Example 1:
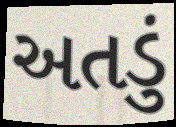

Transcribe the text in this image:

અતડું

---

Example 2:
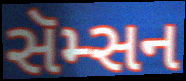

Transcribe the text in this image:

સૅમ્સન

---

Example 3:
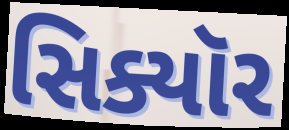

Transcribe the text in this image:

સિક્યૉર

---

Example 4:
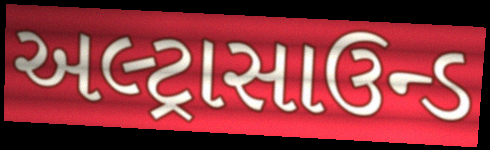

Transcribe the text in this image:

અલ્ટ્રાસાઉન્ડ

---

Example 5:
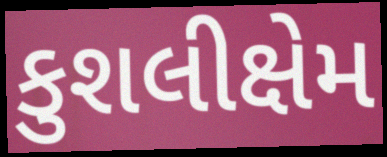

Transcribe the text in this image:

કુશલીક્ષેમ